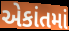
એકાંતમાં